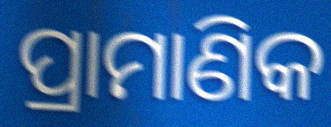
ପ୍ରାମାଣିକ